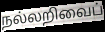
நல்லறிவைப்